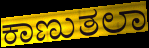
ಕಾಣುತಲಾ